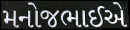
મનોજભાઈએ